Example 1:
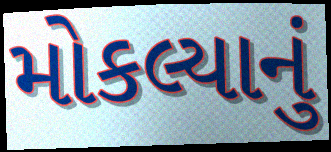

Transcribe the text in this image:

મોકલ્યાનું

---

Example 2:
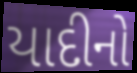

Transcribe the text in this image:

યાદીનો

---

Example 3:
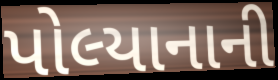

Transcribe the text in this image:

પોલ્યાનાની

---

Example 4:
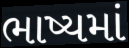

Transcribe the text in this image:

ભાષ્યમાં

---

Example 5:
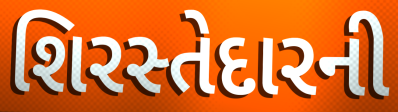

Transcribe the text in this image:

શિરસ્તેદારની